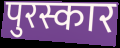
पुरस्कार